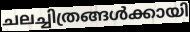
ചലച്ചിത്രങ്ങൾക്കായി